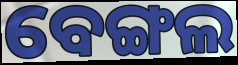
ବେଙ୍ଗଲ